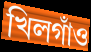
খিলগাঁও